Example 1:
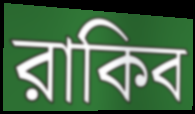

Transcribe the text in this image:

রাকিব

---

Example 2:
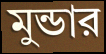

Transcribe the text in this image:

মুন্ডার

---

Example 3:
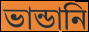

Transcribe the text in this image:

ভান্ডানি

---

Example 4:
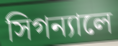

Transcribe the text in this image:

সিগন্যালে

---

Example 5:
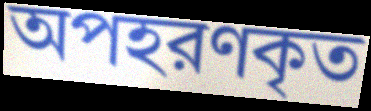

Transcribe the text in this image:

অপহরণকৃত